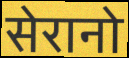
सेरानो